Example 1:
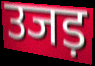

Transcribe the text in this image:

उजड़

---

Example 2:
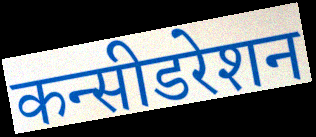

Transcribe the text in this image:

कन्सीडरेशन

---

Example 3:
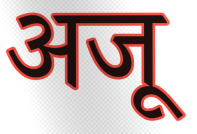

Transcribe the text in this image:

अजू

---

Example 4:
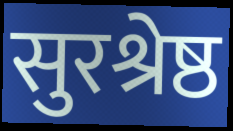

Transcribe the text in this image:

सुरश्रेष्ठ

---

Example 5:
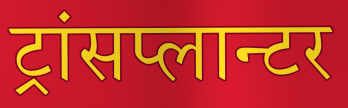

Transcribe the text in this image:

ट्रांसप्लान्टर